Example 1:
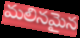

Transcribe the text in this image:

మలినమైన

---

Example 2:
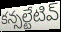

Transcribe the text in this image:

కన్సల్టేటివ్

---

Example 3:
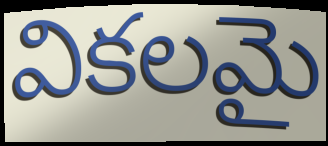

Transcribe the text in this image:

వికలమై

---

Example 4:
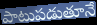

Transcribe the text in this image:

పాటుపడుతూనే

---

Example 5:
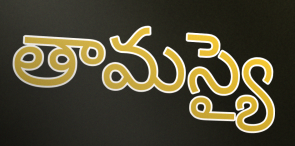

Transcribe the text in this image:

తామస్యై